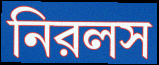
নিরলস